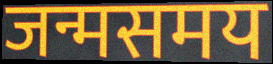
जन्मसमय